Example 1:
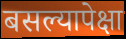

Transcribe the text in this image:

बसल्यापेक्षा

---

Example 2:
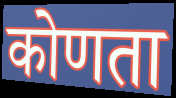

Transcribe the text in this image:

कोणता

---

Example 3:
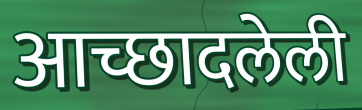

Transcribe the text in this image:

आच्छादलेली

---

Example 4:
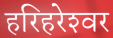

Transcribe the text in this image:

हरिहरेश्वर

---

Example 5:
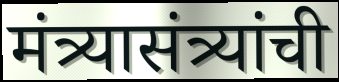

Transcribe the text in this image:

मंत्र्यासंत्र्यांची